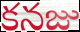
కనజు